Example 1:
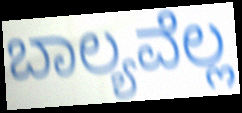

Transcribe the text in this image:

ಬಾಲ್ಯವೆಲ್ಲ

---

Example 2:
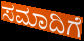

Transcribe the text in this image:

ಸಮಾದಿಗೆ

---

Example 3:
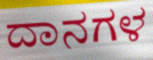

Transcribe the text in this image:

ದಾನಗಳ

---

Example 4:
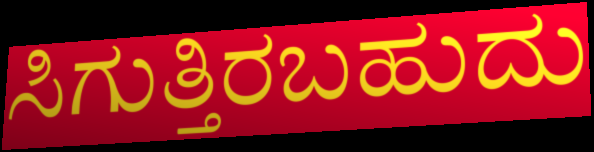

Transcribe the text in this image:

ಸಿಗುತ್ತಿರಬಹುದು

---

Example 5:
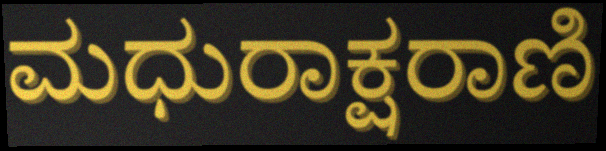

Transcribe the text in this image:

ಮಧುರಾಕ್ಷರಾಣಿ